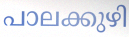
പാലക്കുഴി